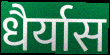
धैर्यास